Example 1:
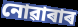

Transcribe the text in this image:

নোৱাৰাৰ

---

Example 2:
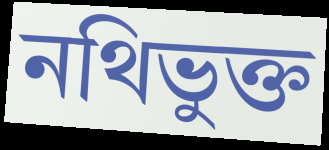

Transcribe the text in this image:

নথিভুক্ত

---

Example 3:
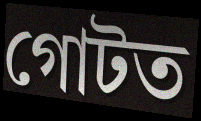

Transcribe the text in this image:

গোটত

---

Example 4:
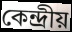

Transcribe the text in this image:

কেন্দ্ৰীয়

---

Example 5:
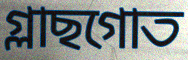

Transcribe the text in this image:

গ্লাছগোত